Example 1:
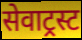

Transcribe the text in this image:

सेवाट्रस्ट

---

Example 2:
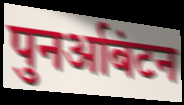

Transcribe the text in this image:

पुनर्आबंटन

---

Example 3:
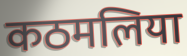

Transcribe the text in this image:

कठमलिया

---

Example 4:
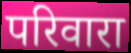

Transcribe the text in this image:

परिवारा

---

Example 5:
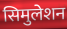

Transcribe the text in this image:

सिमुलेशन